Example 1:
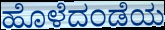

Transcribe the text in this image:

ಹೊಳೆದಂಡೆಯ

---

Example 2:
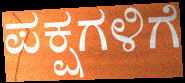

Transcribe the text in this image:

ಪಕ್ಷಗಳಿಗೆ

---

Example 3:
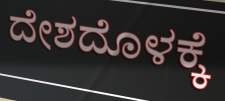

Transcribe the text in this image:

ದೇಶದೊಳಕ್ಕೆ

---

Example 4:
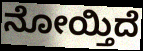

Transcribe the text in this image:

ನೋಯ್ತಿದೆ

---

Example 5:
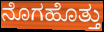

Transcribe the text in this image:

ನೊಗಹೊತ್ತು